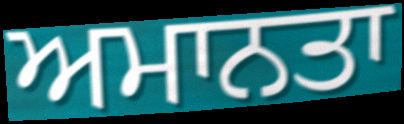
ਅਮਾਨਤਾ